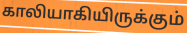
காலியாகியிருக்கும்